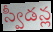
స్వీడన్ల